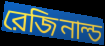
রেজিনাল্ড